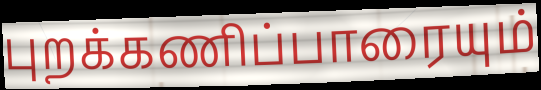
புறக்கணிப்பாரையும்